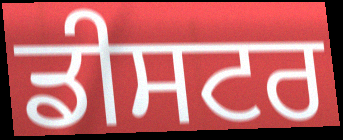
ਡੀਸਟਰ